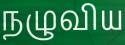
நழுவிய